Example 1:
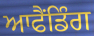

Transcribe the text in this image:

ਆਫੈਂਡਿੰਗ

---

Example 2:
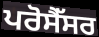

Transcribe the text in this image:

ਪਰੋਸੈੱਸਰ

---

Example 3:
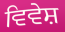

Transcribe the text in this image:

ਵਿਵੇਸ਼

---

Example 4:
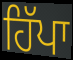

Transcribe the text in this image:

ਹਿੱਪਾ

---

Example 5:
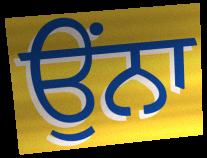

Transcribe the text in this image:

ਉੰਨਾ